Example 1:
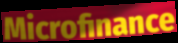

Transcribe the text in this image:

Microfinance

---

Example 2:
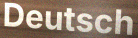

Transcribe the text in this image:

Deutsch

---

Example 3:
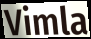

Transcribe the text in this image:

Vimla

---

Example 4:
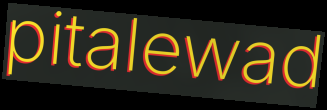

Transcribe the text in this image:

pitalewad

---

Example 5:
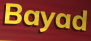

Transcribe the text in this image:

Bayad